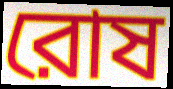
রোষ